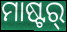
ମାଷ୍ଟର୍